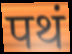
पथं